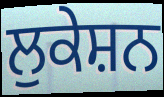
ਲੁਕੇਸ਼ਨ